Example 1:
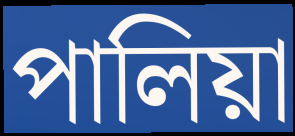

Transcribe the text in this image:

পালিয়া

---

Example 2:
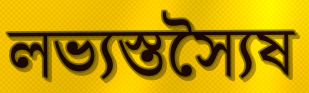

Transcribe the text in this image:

লভ্যস্তস্যৈষ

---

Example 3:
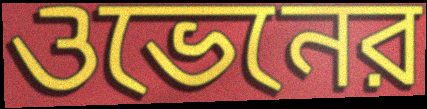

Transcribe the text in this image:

ওভেনের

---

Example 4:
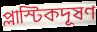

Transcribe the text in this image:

প্লাস্টিকদূষণ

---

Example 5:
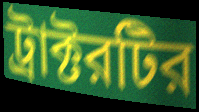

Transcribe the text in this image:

ট্রাক্টরটির